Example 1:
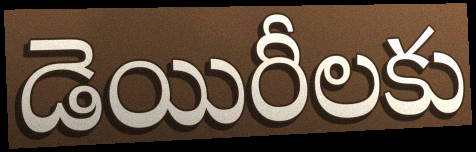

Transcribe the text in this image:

డెయిరీలకు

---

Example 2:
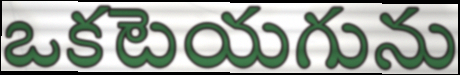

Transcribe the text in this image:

ఒకటెయగును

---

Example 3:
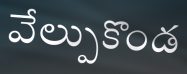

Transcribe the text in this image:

వేల్పుకొండ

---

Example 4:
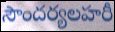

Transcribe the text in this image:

సౌందర్యలహరీ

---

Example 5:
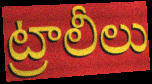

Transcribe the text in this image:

ట్రాలీలు